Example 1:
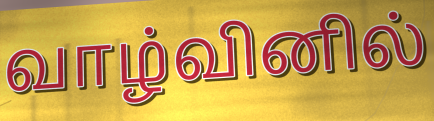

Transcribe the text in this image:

வாழ்வினில்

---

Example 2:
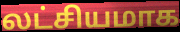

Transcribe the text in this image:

லட்சியமாக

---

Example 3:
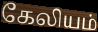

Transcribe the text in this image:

கேலியம்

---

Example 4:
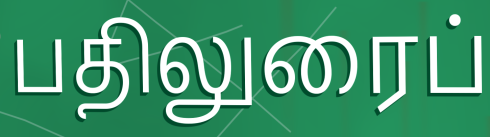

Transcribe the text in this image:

பதிலுரைப்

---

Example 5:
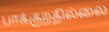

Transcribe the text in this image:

பாக்குறதில்லை